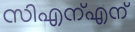
സിഎന്എന്